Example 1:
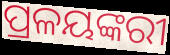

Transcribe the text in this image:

ପ୍ରଳୟଙ୍କରୀ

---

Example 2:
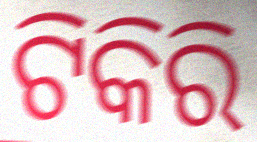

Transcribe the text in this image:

ଟିକିରି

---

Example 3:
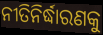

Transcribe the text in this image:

ନୀତିନିର୍ଦ୍ଧାରଣକୁ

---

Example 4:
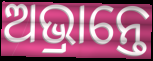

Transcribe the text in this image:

ଅଭ୍ରାନ୍ତେ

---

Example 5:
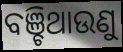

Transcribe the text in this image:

ବଞ୍ଚିଥାଉଣୁ